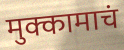
मुक्कामाचं